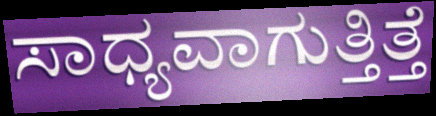
ಸಾಧ್ಯವಾಗುತ್ತಿತ್ತೆ